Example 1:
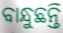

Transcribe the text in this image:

ବାନ୍ଧୁଛନ୍ତି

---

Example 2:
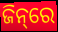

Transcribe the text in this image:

ଜିନ୍‌ରେ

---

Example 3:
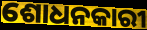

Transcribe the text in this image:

ଶୋଧନକାରୀ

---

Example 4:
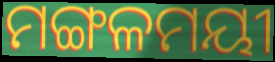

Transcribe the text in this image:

ମଙ୍ଗଳମୟୀ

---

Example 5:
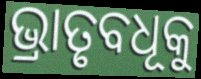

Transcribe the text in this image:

ଭ୍ରାତୃବଧୂକୁ